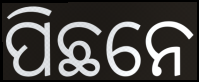
ପିଛନେ